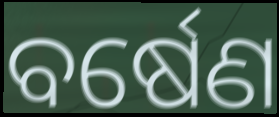
ବର୍ଷେଣ